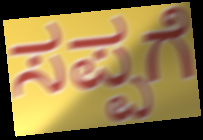
ಸಪ್ಪಗೆ